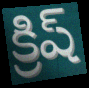
క్రిష్